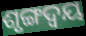
ଶୃଙ୍ଗଦ୍ୱୟ